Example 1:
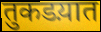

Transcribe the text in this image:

तुकडय़ात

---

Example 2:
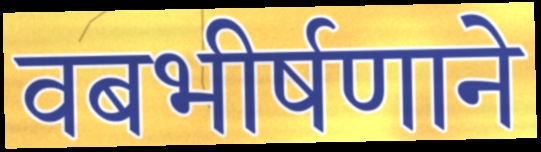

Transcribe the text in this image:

वबभीर्षणाने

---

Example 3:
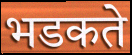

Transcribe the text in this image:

भडकते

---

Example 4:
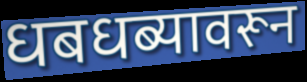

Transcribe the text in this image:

धबधब्यावरून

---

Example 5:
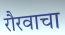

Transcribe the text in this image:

रौरवाचा